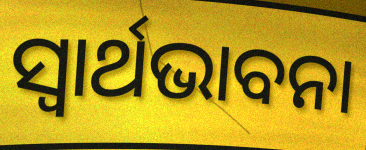
ସ୍ଵାର୍ଥଭାବନା